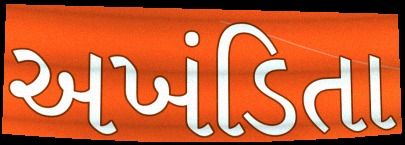
અખંડિતા